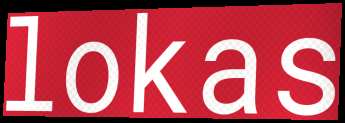
lokas